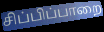
சிப்பிப்பாறை